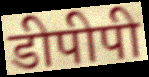
डीपीपी